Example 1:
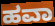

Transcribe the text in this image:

ಹವಾ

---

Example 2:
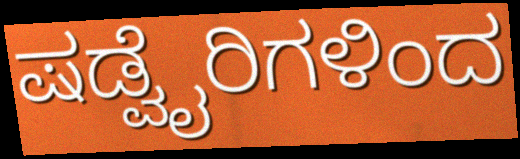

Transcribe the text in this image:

ಷಡ್ವೈರಿಗಳಿಂದ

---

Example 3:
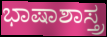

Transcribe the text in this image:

ಭಾಷಾಶಾಸ್ತ್ರ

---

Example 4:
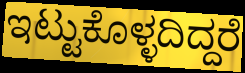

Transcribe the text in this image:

ಇಟ್ಟುಕೊಳ್ಳದಿದ್ದರೆ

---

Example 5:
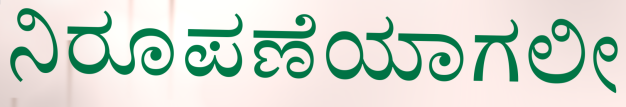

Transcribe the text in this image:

ನಿರೂಪಣೆಯಾಗಲೀ